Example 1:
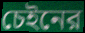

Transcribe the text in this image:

চেইনের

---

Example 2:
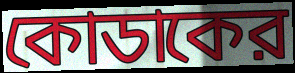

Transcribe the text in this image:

কোডাকের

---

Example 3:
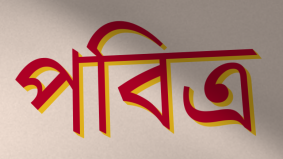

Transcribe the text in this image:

পবিত্র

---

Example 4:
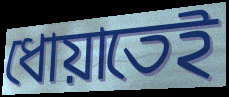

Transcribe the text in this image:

ধোয়াতেই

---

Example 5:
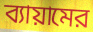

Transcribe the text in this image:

ব্যায়ামের